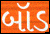
બૉડ